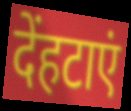
देंहटाएं